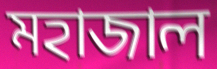
মহাজাল